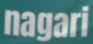
nagari